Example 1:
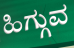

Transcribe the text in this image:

ಹಿಗ್ಗುವ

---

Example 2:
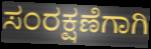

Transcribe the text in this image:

ಸಂರಕ್ಷಣೆಗಾಗಿ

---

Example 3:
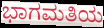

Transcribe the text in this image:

ಭಾಗಮತಿಯ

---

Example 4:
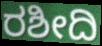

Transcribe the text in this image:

ರಶೀದಿ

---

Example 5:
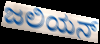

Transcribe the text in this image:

ಜಲಿಯನ್